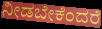
ನೀಡಬೇಕೆಂದರೆ